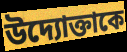
উদ্যোক্তাকে